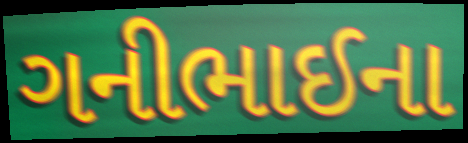
ગનીભાઈના